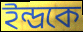
ইন্দ্রকে